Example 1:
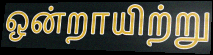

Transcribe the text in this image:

ஒன்றாயிற்று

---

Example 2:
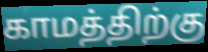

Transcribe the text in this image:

காமத்திற்கு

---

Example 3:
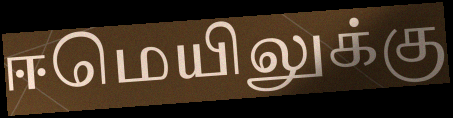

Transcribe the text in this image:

ஈமெயிலுக்கு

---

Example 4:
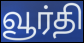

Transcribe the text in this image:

வூர்தி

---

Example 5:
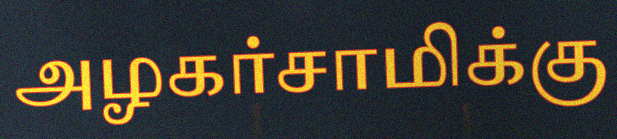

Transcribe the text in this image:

அழகர்சாமிக்கு